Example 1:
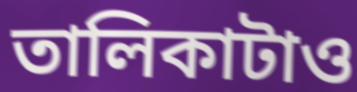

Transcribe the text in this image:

তালিকাটাও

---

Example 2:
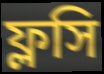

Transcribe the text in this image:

ফ্লসি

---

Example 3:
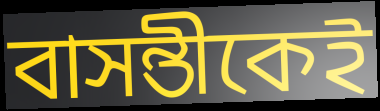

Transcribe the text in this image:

বাসন্তীকেই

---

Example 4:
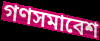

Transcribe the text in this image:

গণসমাবেশ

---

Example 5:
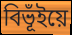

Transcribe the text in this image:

বিভূঁইয়ে